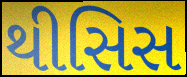
થીસિસ